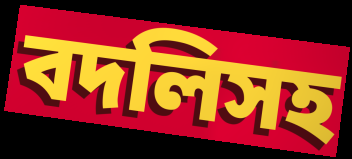
বদলিসহ